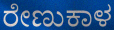
ರೇಣುಕಾಳ